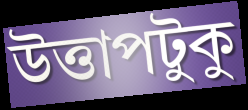
উত্তাপটুকু